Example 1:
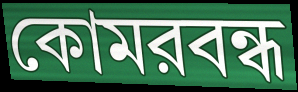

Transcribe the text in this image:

কোমরবন্ধ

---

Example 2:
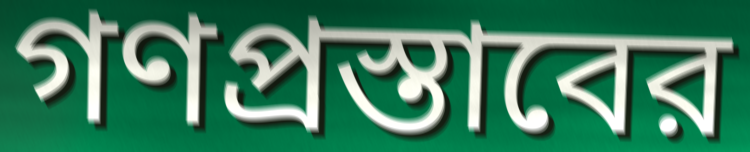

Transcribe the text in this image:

গণপ্রস্তাবের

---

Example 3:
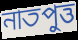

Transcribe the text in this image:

নাতপুত্ত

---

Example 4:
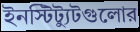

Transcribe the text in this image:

ইনস্টিট্যুটগুলোর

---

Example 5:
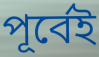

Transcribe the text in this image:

পূর্বেই